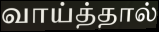
வாய்த்தால்